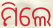
ମିଲେ